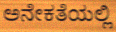
ಅನೇಕತೆಯಲ್ಲಿ